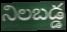
నిలబడ్డ